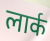
लार्क